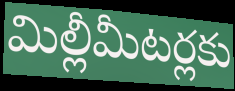
మిల్లీమీటర్లకు